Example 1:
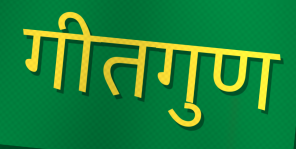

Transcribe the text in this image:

गीतगुण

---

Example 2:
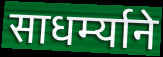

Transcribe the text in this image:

साधर्म्याने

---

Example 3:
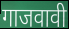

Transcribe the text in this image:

गाजवावी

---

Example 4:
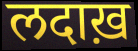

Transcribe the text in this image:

लदाख़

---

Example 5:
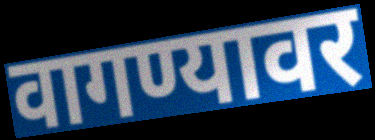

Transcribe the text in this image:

वागण्यावर